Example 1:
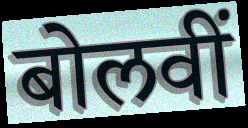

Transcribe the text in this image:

बोलवीं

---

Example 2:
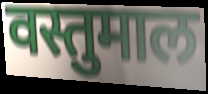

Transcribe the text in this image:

वस्तुमाल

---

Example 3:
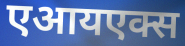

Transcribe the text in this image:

एआयएक्स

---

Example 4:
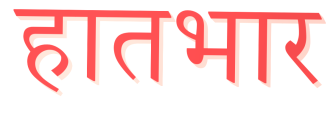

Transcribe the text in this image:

हातभार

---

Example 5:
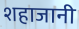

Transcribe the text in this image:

शहाजानी